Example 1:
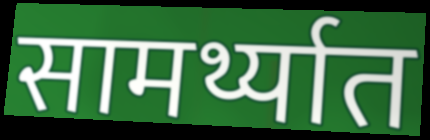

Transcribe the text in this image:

सामर्थ्यात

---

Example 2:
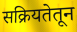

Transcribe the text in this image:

सक्रियतेतून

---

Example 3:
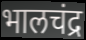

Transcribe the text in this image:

भालचंद्र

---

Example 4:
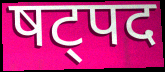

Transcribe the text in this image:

षट्पद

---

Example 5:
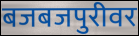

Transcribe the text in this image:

बजबजपुरीवर